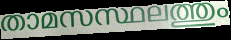
താമസസ്ഥലത്തും